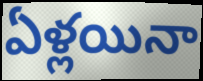
ఏళ్లయినా